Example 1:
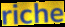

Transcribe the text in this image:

riche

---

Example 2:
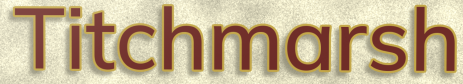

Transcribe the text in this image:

Titchmarsh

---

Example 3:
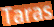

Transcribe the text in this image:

Taras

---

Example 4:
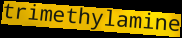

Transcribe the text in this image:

trimethylamine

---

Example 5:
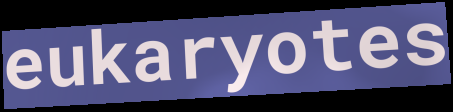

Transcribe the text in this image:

eukaryotes